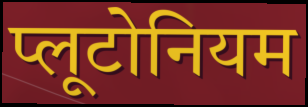
प्लूटोनियम